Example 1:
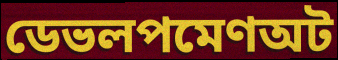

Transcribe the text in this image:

ডেভলপমেণঅট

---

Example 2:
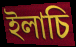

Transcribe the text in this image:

ইলাচি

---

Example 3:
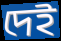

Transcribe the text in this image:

দেই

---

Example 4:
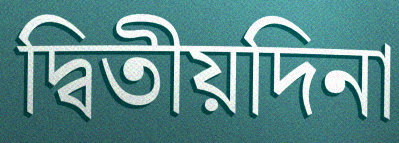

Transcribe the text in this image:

দ্বিতীয়দিনা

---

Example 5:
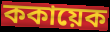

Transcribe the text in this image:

ককায়েক